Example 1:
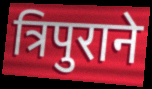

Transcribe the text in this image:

त्रिपुराने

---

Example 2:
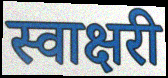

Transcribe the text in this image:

स्वाक्षरी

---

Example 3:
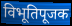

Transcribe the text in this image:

विभूतिपूजक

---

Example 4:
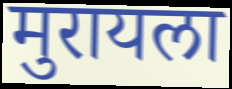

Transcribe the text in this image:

मुरायला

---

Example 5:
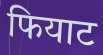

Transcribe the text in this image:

फियाट